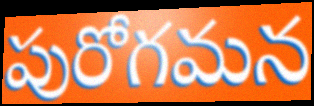
పురోగమన